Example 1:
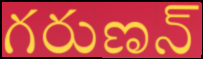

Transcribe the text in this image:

గరుణన్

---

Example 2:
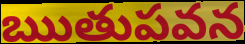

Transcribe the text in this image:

ఋతుపవన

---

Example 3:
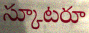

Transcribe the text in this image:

స్కూటరూ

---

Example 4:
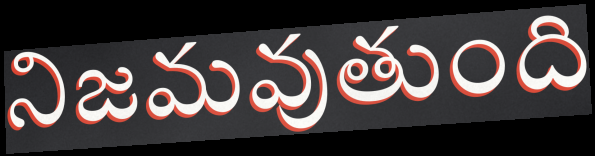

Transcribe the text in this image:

నిజమవుతుంది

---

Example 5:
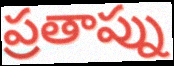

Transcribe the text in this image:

ప్రతాప్ను